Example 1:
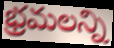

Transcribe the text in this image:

భ్రమలన్ని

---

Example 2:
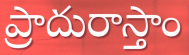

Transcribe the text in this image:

ప్రాదురాస్తాం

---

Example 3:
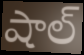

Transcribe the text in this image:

షాల్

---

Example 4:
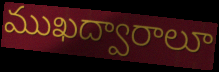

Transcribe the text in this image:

ముఖద్వారాలూ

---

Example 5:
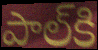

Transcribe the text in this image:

పాల్‌కి